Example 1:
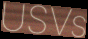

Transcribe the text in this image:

USVs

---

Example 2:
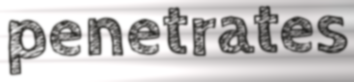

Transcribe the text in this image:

penetrates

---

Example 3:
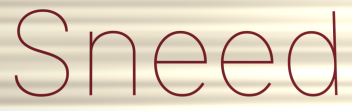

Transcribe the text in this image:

Sneed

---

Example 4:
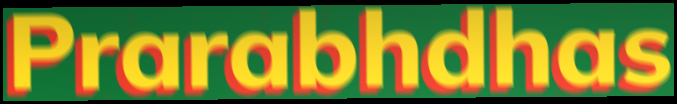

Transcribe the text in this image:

Prarabhdhas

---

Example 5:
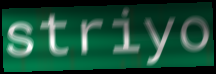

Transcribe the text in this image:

striyo